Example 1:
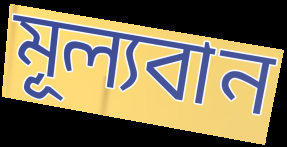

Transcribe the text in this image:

মূল্যবান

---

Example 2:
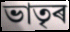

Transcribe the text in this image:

ভাতৃৰ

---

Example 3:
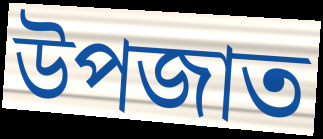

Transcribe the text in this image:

উপজাত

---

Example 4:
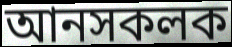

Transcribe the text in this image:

আনসকলক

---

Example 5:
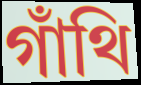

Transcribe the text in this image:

গাঁথি